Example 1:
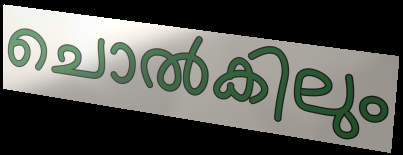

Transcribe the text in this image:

ചൊൽകിലും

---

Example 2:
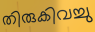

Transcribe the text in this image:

തിരുകിവച്ചു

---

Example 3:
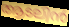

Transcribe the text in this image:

ആടലിൻ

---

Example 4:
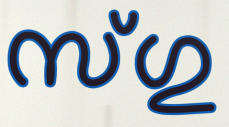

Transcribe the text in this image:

സ്ഗു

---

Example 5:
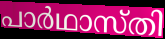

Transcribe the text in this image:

പാർഥാസ്തി